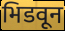
भिडवून